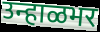
उन्हाळभर